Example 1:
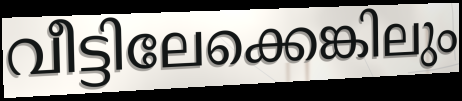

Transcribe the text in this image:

വീട്ടിലേക്കെങ്കിലും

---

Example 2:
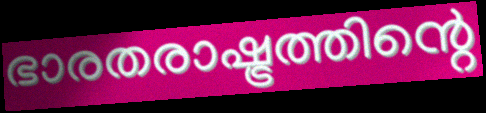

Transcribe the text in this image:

ഭാരതരാഷ്ട്രത്തിന്റെ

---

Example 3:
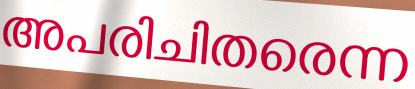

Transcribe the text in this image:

അപരിചിതരെന്ന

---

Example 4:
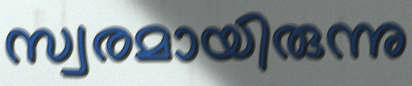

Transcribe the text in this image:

സ്വരമായിരുന്നു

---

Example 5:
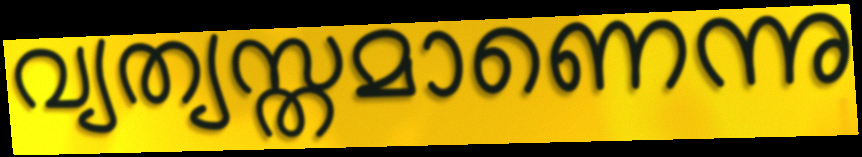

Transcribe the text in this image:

വ്യത്യസ്തമാണെന്നു